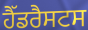
ਹੈੱਡਰੈਸਟਸ